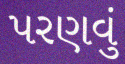
પરણવું